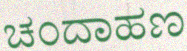
ಚಂದಾಹಣ